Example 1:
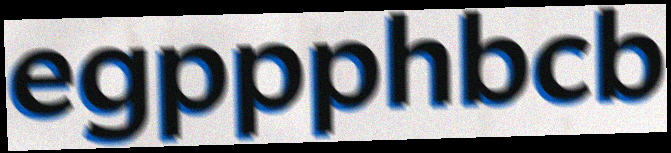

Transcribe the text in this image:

egppphbcb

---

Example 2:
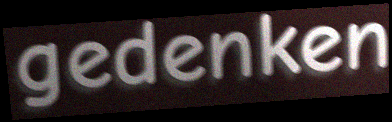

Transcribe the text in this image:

gedenken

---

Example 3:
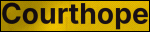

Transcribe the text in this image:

Courthope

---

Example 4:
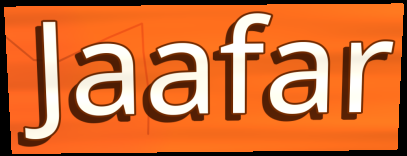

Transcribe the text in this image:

Jaafar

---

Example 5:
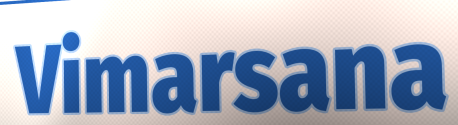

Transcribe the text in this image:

Vimarsana